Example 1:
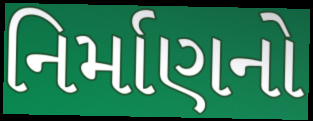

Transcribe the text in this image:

નિર્માણનો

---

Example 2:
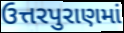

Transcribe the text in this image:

ઉત્તરપુરાણમાં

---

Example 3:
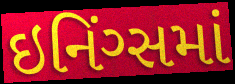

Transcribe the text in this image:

ઇનિંગ્સમાં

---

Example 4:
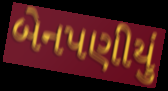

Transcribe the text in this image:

બેનપણીયું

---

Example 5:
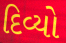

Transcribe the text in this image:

દિવ્યો